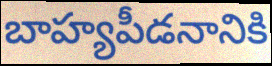
బాహ్యపీడనానికి